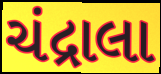
ચંદ્રાલા